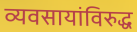
व्यवसायांविरुद्ध